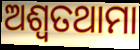
ଅଶ୍ୱତଥାମା